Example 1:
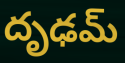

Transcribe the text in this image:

దృఢమ్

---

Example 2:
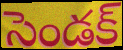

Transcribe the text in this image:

సెండక్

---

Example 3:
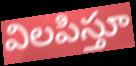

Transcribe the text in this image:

విలపిస్తూ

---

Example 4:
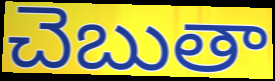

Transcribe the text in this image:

చెబుతా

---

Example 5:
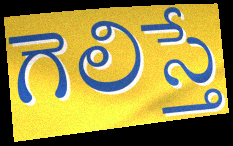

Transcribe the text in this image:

గెలిస్తే